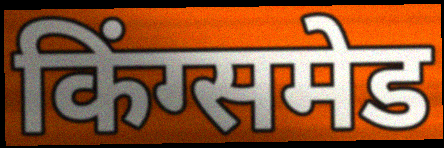
किंग्समेड